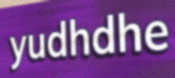
yudhdhe